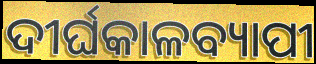
ଦୀର୍ଘକାଳବ୍ୟାପୀ